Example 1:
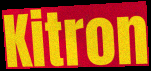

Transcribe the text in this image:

Kitron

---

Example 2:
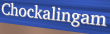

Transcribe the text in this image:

Chockalingam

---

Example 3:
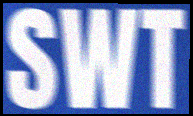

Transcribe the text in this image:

SWT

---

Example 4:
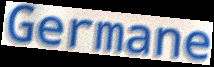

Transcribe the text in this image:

Germane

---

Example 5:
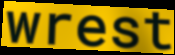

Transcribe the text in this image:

wrest